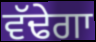
ਵੱਢੇਗਾ